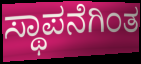
ಸ್ಥಾಪನೆಗಿಂತ